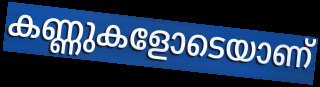
കണ്ണുകളോടെയാണ്